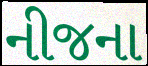
નીજના